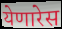
येणारेस